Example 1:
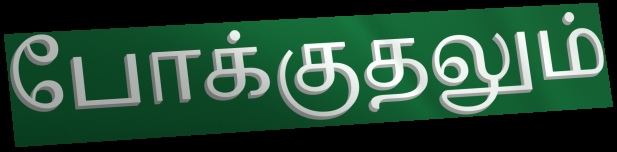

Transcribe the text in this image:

போக்குதலும்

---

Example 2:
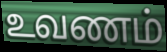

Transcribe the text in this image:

உவணம்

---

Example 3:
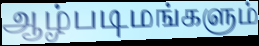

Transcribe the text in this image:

ஆழ்படிமங்களும்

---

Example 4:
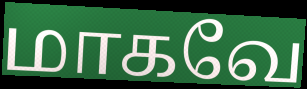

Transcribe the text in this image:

மாகவே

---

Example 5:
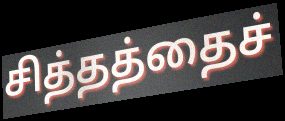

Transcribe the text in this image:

சித்தத்தைச்